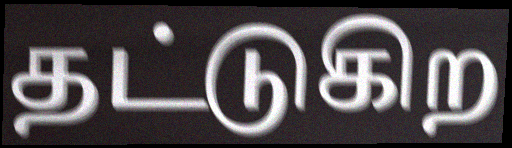
தட்டுகிற